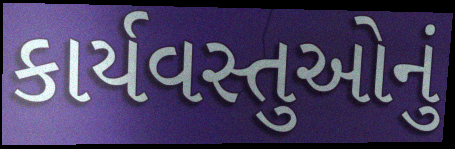
કાર્યવસ્તુઓનું